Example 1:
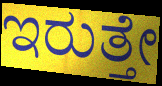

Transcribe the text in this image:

ಇರುತ್ತೇ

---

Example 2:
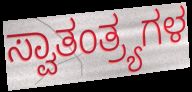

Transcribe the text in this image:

ಸ್ವಾತಂತ್ರ್ಯಗಳ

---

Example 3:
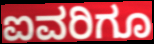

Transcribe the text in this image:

ಐವರಿಗೂ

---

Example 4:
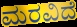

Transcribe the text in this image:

ಮರವಿದೆ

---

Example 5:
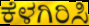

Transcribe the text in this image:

ಕೆಳಗಿರಿಸಿ